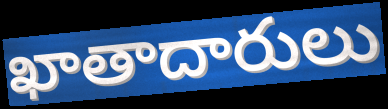
ఖాతాదారులు